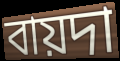
বায়দা